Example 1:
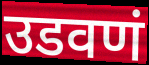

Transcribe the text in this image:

उडवणं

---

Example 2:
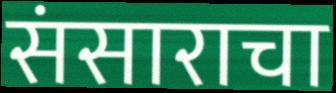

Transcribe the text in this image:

संसाराचा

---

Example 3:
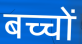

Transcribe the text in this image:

बच्चों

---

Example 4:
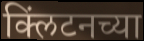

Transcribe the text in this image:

क्लिंटनच्या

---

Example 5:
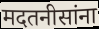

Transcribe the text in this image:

मदतनीसांना